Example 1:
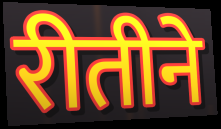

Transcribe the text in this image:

रीतीने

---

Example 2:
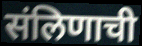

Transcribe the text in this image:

संलिणाची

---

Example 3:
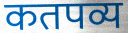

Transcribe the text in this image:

कतपव्य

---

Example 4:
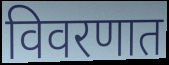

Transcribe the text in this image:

विवरणात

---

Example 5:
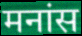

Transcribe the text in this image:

मनांस